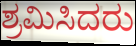
ಶ್ರಮಿಸಿದರು